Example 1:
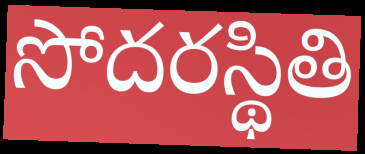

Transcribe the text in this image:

సోదరస్థితి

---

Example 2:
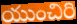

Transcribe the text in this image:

యుంచిరి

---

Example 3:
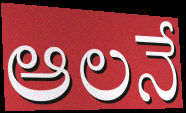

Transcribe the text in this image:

ఆలనే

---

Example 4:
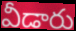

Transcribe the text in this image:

వీడారు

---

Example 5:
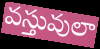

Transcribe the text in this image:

వస్తువులా